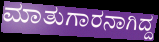
ಮಾತುಗಾರನಾಗಿದ್ದ